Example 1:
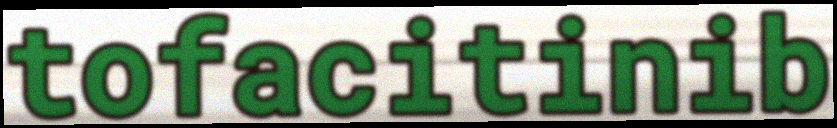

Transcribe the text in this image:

tofacitinib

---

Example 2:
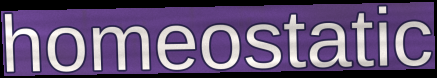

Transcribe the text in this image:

homeostatic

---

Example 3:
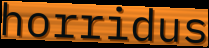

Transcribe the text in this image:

horridus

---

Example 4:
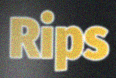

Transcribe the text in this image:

Rips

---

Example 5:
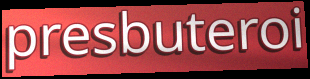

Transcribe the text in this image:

presbuteroi